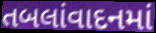
તબલાંવાદનમાં